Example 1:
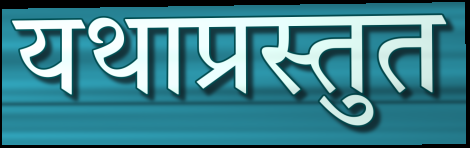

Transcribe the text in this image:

यथाप्रस्तुत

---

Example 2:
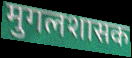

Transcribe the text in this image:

मुगलशासक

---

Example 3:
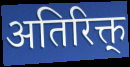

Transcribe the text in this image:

अतिरिक्त्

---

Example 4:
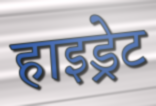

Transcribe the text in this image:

हाइड्रेट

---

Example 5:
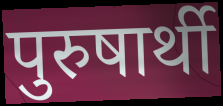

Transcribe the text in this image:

पुरुषार्थी